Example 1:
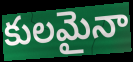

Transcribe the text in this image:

కులమైనా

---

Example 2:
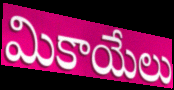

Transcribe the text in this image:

మికాయేలు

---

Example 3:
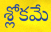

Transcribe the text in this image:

శ్లోకమే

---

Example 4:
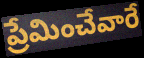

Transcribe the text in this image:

ప్రేమించేవారే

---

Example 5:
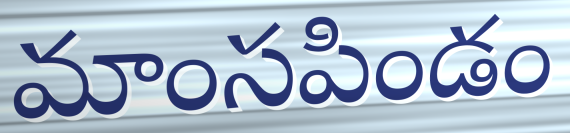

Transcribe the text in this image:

మాంసపిండం